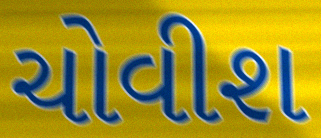
ચોવીશ